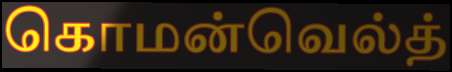
கொமன்வெல்த்